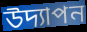
উদ্যাপন